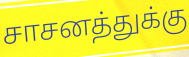
சாசனத்துக்கு